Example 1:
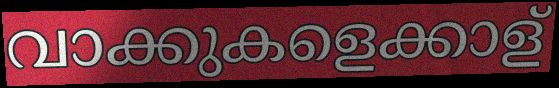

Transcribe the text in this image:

വാക്കുകളെക്കാള്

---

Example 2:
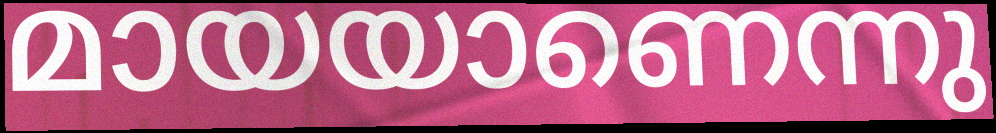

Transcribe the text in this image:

മായയാണെന്നു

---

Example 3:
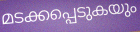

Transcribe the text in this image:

മടക്കപ്പെടുകയും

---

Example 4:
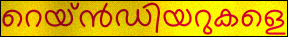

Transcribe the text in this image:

റെയ്ൻഡിയറുകളെ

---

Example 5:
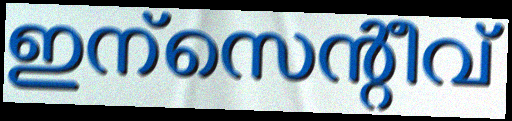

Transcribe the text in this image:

ഇന്സെന്റീവ്